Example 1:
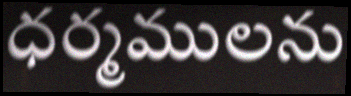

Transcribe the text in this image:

ధర్మములను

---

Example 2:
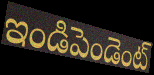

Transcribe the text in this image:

ఇండిపెండెంట్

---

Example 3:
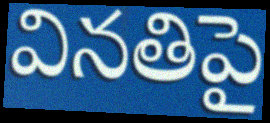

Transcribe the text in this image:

వినతిపై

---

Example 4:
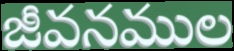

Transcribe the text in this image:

జీవనముల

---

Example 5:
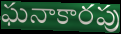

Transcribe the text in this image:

ఘనాకారపు